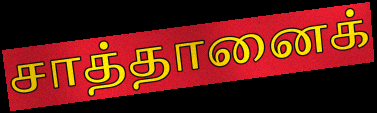
சாத்தானைக்